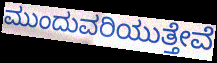
ಮುಂದುವರಿಯುತ್ತೇವೆ